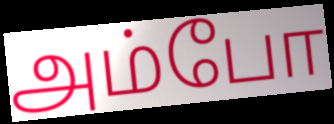
அம்போ